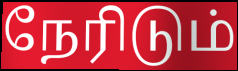
நேரிடும்